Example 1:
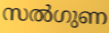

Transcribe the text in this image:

സൽഗുണ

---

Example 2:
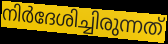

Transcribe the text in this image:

നിർദേശിച്ചിരുന്നത്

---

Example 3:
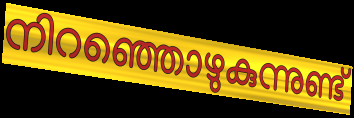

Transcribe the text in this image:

നിറഞ്ഞൊഴുകുന്നുണ്ട്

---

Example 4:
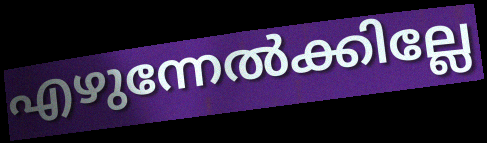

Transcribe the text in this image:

എഴുന്നേൽക്കില്ലേ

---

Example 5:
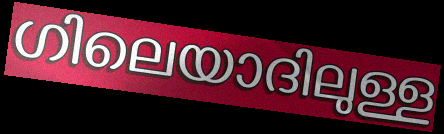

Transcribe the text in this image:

ഗിലെയാദിലുള്ള